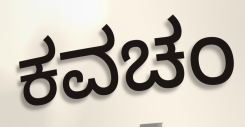
ಕವಚಂ